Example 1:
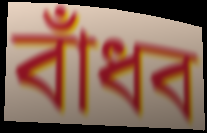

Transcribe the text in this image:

বাঁধব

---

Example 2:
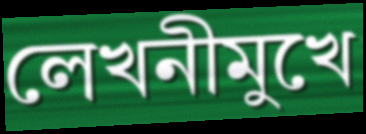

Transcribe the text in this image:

লেখনীমুখে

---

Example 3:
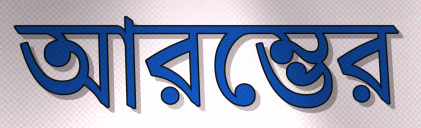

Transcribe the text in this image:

আরম্ভের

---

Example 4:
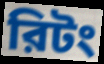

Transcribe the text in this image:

রিটং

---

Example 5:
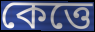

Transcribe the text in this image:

কেত্তে